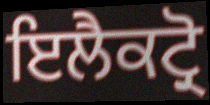
ਇਲੈਕਟ੍ਰੋ